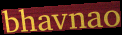
bhavnao